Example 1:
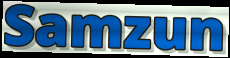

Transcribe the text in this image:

Samzun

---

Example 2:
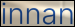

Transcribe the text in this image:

innan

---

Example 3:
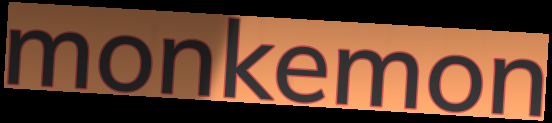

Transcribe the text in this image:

monkemon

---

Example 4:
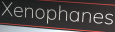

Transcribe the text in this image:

Xenophanes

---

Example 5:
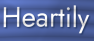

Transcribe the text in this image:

Heartily